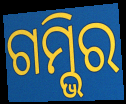
ଗମ୍ଭିର